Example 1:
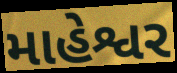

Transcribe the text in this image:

માહેશ્વર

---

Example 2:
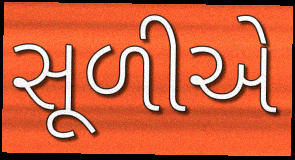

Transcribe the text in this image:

સૂળીએ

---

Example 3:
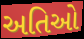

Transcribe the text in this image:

અતિઓ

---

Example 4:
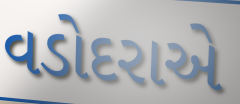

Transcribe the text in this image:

વડોદરાએ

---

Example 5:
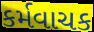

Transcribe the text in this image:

કર્મવાચક